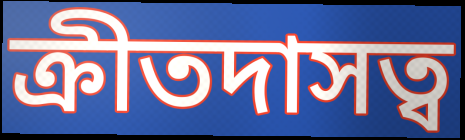
ক্রীতদাসত্ব